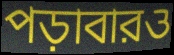
পড়াবারও